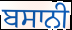
ਬਸਾਨੀ